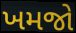
ખમજો